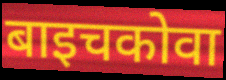
बाइचकोवा